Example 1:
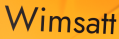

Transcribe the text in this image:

Wimsatt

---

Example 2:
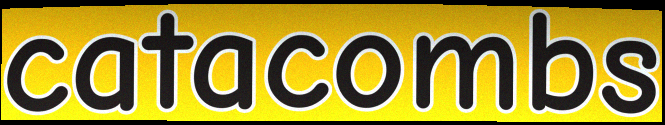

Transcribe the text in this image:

catacombs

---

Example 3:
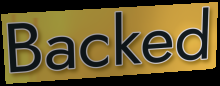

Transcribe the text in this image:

Backed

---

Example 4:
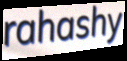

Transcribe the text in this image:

rahashy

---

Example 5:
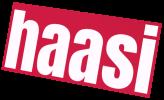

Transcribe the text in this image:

haasi